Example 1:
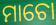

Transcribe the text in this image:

ମାଚୋ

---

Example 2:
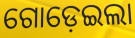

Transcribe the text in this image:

ଗୋଡ଼େଇଲା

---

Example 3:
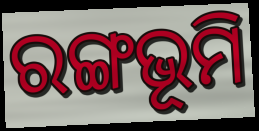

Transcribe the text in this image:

ରଙ୍ଗଭୂମି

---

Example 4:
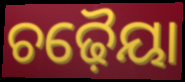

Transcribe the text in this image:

ଚଢ଼ୈୟା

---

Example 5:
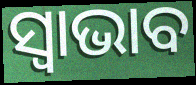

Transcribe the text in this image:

ସ୍ୱାଭାବ